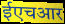
ईएचआर